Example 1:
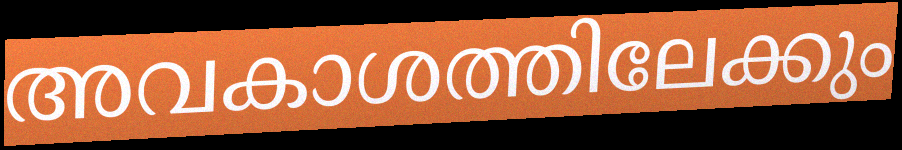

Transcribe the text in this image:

അവകാശത്തിലേക്കും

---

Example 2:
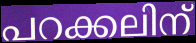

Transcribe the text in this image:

പറക്കലിന്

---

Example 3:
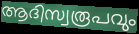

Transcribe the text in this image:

ആദിസ്വരൂപവും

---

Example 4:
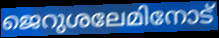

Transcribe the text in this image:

ജെറുശലേമിനോട്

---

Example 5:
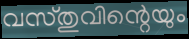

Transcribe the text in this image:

വസ്തുവിന്റെയും